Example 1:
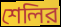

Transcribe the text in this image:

শেলির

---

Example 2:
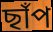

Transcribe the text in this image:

ছাঁপ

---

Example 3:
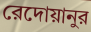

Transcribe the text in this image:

রেদোয়ানুর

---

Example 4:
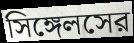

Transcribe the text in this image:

সিঙ্গেলসের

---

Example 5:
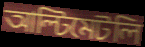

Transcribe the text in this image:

আল্টিমেটলি